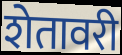
शेतावरी